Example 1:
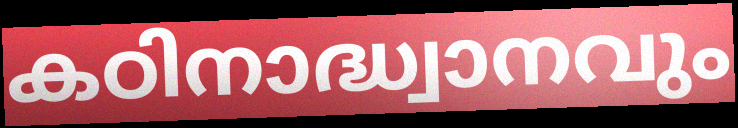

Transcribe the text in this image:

കഠിനാദ്ധ്വാനവും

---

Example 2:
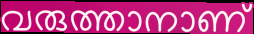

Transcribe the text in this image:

വരുത്താനാണ്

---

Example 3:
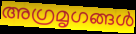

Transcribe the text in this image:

അഗ്രമൃഗങ്ങൾ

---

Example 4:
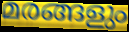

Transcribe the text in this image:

മരങ്ങളും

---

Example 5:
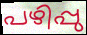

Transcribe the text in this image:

പഴിപ്പു